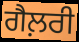
ਗੈਲ਼ਰੀ